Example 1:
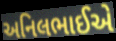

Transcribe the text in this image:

અનિલભાઈએ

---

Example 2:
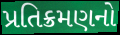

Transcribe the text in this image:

પ્રતિક્રમણનો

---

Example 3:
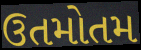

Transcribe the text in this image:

ઉતમોતમ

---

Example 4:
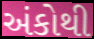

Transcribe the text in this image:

અંકોથી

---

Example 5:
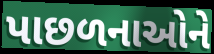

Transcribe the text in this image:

પાછળનાઓને